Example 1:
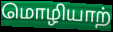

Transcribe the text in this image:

மொழியாற்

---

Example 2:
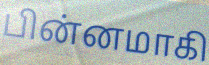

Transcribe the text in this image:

பின்னமாகி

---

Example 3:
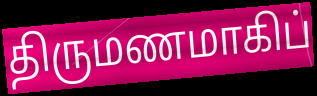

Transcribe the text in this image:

திருமணமாகிப்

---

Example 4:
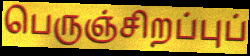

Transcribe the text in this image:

பெருஞ்சிறப்புப்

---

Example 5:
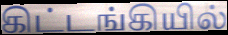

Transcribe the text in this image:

கிட்டங்கியில்